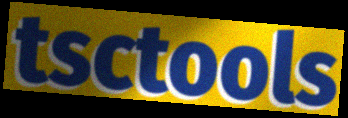
tsctools